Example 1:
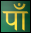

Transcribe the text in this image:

पाँ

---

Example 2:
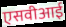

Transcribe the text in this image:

एसवीआई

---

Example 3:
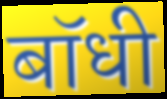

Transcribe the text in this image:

बॉधी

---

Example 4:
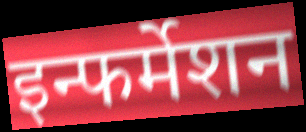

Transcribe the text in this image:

इन्फर्मेशन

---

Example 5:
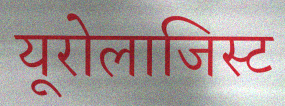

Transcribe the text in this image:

यूरोलाजिस्ट